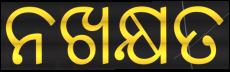
ନଖକ୍ଷତ